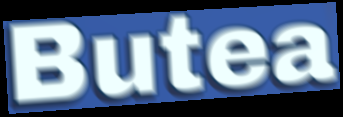
Butea